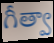
గీత్వా